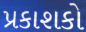
પ્રકાશકો